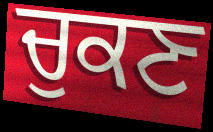
ਚੁਕਣ